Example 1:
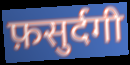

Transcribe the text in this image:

फ़सुर्दगी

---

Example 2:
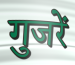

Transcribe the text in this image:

गुजरें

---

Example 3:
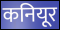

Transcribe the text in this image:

कनियूर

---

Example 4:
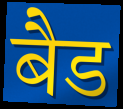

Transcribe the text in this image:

बैड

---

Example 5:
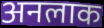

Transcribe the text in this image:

अनलाक